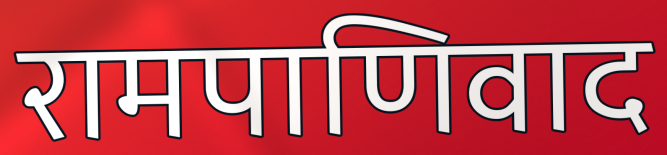
रामपाणिवाद